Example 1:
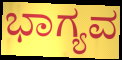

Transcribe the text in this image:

ಭಾಗ್ಯವ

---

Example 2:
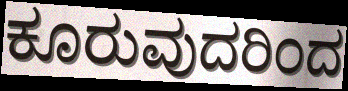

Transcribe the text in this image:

ಕೂರುವುದರಿಂದ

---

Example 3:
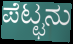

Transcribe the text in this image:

ಪೆಟ್ಟನು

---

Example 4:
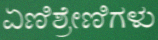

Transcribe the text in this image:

ಏಣಿಶ್ರೇಣಿಗಳು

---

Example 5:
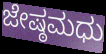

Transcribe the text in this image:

ಜೇಷ್ಠಮಧು